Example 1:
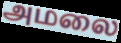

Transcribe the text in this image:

அமலை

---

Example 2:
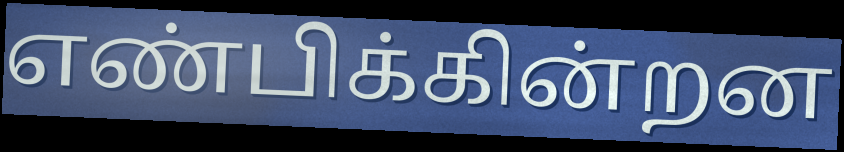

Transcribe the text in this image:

எண்பிக்கின்றன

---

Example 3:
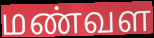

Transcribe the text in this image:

மண்வள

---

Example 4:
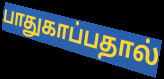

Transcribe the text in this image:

பாதுகாப்பதால்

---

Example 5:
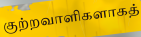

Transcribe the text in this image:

குற்றவாளிகளாகத்